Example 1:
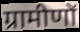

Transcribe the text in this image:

ग्रामीणों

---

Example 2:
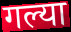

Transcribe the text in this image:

गल्या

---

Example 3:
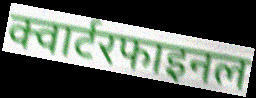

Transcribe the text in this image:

क्वार्टरफाइनल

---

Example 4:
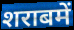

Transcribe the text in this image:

शराबमें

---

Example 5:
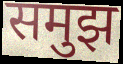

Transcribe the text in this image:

समुझ